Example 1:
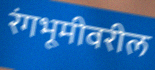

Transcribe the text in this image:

रंगभूमीवरील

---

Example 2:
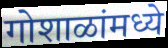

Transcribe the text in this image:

गोशाळांमध्ये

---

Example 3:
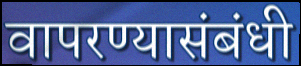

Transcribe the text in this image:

वापरण्यासंबंधी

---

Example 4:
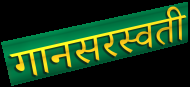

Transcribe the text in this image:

गानसरस्वती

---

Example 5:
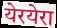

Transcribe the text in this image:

येरयेरा